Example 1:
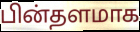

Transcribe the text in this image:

பின்தளமாக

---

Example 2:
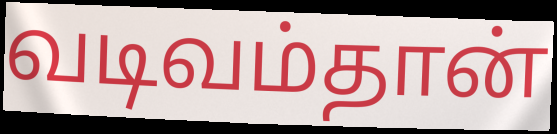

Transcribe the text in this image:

வடிவம்தான்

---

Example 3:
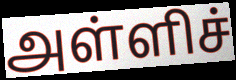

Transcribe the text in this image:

அள்ளிச்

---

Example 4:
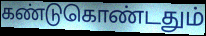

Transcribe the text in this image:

கண்டுகொண்டதும்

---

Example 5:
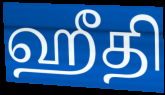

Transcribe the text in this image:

ஹீதி